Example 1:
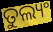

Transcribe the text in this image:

ତୁଲ୍ୟଂ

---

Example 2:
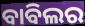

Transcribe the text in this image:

ବାବିଲର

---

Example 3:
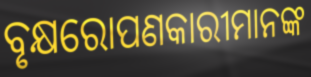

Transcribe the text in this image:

ବୃକ୍ଷରୋପଣକାରୀମାନଙ୍କ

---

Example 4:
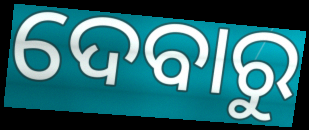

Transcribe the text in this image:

ଦେବାରୁ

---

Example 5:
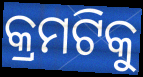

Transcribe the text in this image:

କ୍ରମଟିକୁ